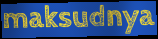
maksudnya